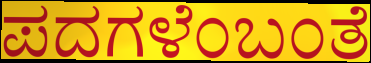
ಪದಗಳೆಂಬಂತೆ